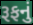
રૂફનું